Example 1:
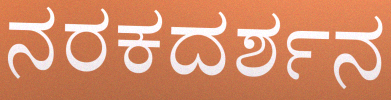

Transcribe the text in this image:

ನರಕದರ್ಶನ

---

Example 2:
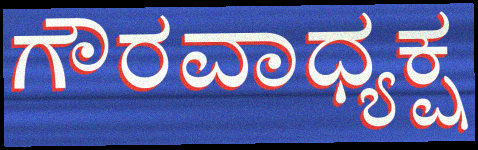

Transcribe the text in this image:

ಗೌರವಾಧ್ಯಕ್ಷ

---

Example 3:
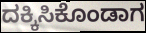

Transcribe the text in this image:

ದಕ್ಕಿಸಿಕೊಂಡಾಗ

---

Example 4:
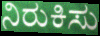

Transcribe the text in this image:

ನಿರುಕಿಸು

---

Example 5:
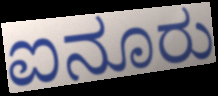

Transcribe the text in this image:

ಐನೂರು